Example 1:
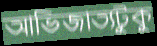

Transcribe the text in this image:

আভিজাত্যটুকু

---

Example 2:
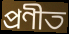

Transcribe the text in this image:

প্রণীত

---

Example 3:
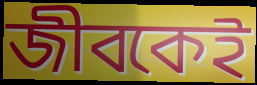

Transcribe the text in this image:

জীবকেই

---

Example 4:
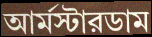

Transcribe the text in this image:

আর্মস্টারডাম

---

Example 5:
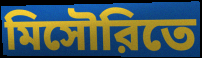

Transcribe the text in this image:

মিসৌরিতে